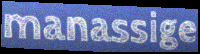
manassige